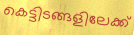
കെട്ടിടങ്ങളിലേക്ക്